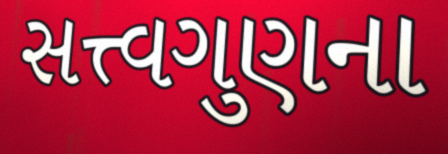
સત્ત્વગુણના